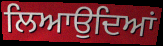
ਲਿਆਉਦਿਆਂ